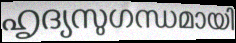
ഹൃദ്യസുഗന്ധമായി